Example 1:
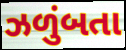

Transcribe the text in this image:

ઝળુંબતા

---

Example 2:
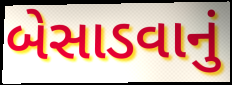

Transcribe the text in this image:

બેસાડવાનું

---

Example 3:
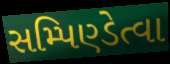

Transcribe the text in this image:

સમ્પિણ્ડેત્વા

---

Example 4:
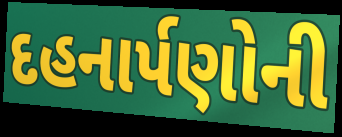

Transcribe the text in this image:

દહનાર્પણોની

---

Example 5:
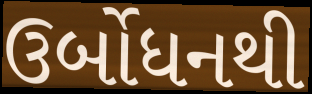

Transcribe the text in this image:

ઉર્બોધનથી